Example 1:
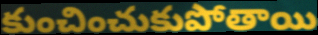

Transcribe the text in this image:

కుంచించుకుపోతాయి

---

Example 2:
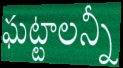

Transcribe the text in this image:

ఘట్టాలన్నీ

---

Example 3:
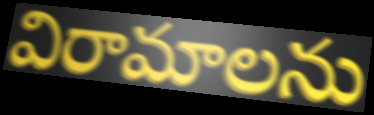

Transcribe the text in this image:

విరామాలను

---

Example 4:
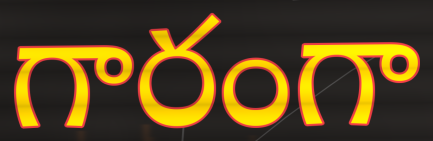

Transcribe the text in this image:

గారంగా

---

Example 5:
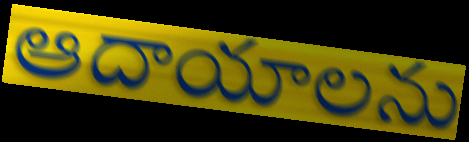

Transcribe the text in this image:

ఆదాయాలను